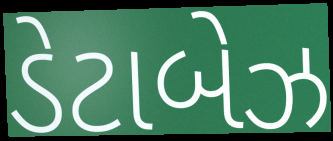
ડેટાબેઝ